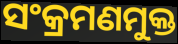
ସଂକ୍ରମଣମୁକ୍ତ